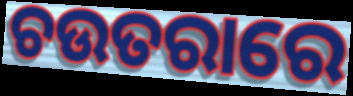
ଚଉତରାରେ